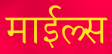
माईल्स